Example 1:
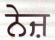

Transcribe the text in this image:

ਨੇਜ਼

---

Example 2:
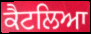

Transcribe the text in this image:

ਕੈਟਲਿਆ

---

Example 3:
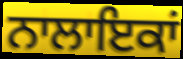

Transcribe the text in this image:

ਨਾਲਾਇਕਾਂ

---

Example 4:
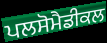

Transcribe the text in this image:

ਪਲਸੋਮੈਡੀਕਲ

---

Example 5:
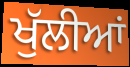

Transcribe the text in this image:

ਖੁੱਲੀਆਂ